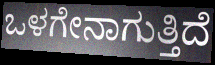
ಒಳಗೇನಾಗುತ್ತಿದೆ